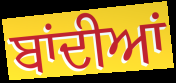
ਬਾਂਦੀਆਂ